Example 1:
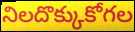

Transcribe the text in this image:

నిలదొక్కుకోగల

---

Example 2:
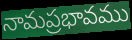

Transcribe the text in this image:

నామప్రభావము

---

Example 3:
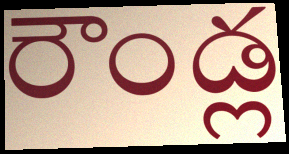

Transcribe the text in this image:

రౌండ్ల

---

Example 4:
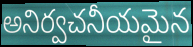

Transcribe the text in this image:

అనిర్వచనీయమైన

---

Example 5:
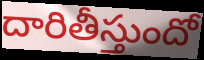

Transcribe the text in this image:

దారితీస్తుందో